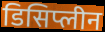
डिसिप्लीन